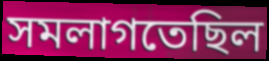
সমলাগতেছিল